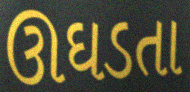
ઊઘડતા